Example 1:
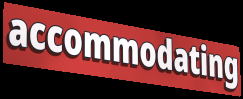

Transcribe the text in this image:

accommodating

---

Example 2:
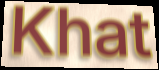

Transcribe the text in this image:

Khat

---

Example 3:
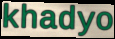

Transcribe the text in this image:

khadyo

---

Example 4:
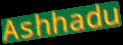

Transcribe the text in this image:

Ashhadu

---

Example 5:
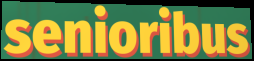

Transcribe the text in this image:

senioribus